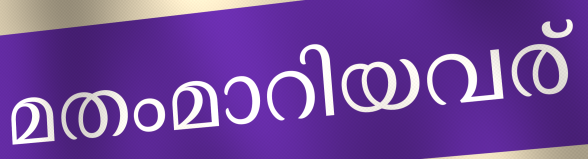
മതംമാറിയവര്